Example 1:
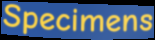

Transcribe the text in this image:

Specimens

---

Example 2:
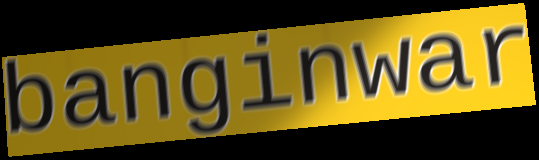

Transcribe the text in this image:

banginwar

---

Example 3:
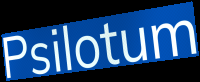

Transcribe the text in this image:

Psilotum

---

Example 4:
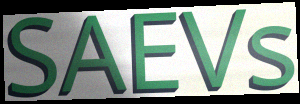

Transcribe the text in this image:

SAEVs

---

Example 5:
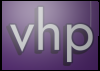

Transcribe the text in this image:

vhp